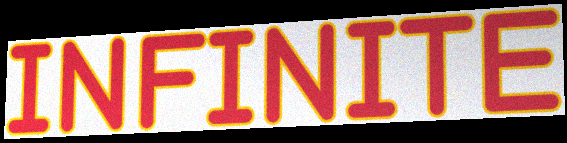
INFINITE